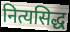
नित्यसिद्ध